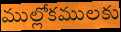
ముల్లోకములకు